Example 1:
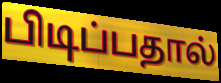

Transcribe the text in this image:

பிடிப்பதால்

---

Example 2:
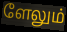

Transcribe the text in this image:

ளேலும்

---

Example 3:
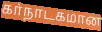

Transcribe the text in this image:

கர்நாடகமான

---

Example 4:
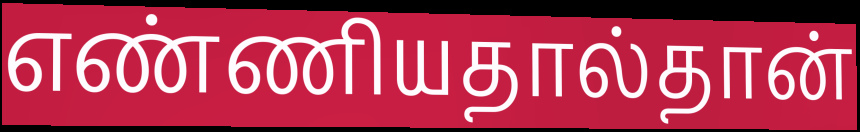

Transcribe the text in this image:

எண்ணியதால்தான்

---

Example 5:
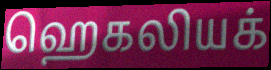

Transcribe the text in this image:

ஹெகலியக்